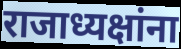
राजाध्यक्षांना